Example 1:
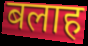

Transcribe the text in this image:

बलाह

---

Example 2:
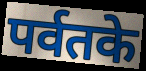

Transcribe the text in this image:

पर्वतके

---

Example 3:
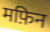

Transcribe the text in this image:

मफ़िन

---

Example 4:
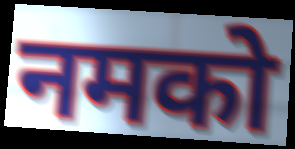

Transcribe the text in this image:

नमको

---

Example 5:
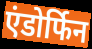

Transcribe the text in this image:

एंडोर्फिन